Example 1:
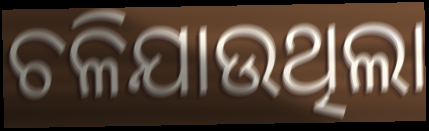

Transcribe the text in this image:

ଚଳିଯାଉଥିଲା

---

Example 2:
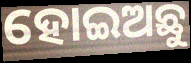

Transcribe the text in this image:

ହୋଇଅଛୁ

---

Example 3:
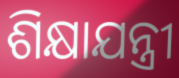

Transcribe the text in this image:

ଶିକ୍ଷାଯନ୍ତ୍ରୀ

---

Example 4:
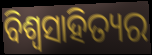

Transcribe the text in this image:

ବିଶ୍ଵସାହିତ୍ୟର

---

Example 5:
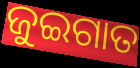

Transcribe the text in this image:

ଜୁଇଗାତ